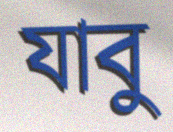
যাবু